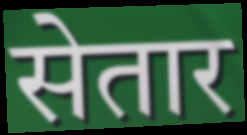
सेतार